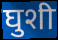
घुशी